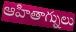
ఆహితాగ్నులు